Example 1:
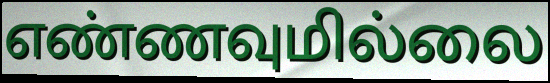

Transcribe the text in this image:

எண்ணவுமில்லை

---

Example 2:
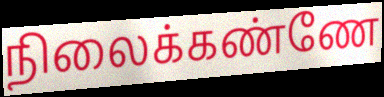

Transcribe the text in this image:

நிலைக்கண்ணே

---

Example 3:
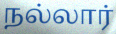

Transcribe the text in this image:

நல்லார்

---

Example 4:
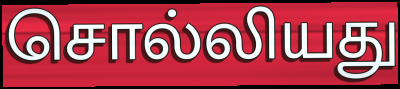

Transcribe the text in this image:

சொல்லியது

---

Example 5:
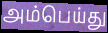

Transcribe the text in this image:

அம்பெய்து